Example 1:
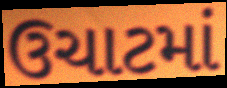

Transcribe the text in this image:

ઉચાટમાં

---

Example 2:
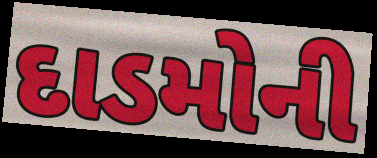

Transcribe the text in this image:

દાડમોની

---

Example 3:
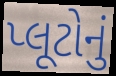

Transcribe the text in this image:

પ્લૂટોનું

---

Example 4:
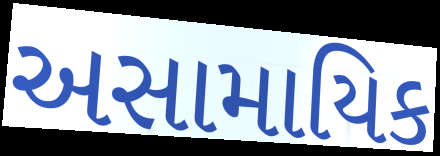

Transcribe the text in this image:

અસામાયિક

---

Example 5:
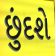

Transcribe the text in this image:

છુંદશે